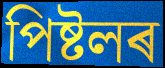
পিষ্টলৰ